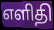
எளிதி